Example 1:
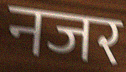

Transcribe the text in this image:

नजर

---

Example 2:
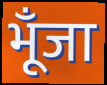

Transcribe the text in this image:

भूँजा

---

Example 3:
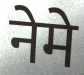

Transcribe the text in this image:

नेमे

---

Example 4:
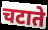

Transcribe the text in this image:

चटाते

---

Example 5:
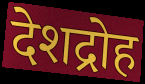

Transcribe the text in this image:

देशद्रोह